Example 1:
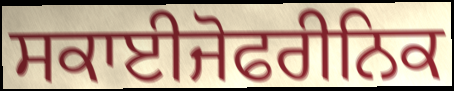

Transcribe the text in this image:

ਸਕਾਈਜੋਫਰੀਨਿਕ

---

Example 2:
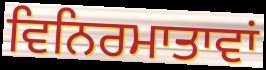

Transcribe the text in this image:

ਵਿਨਿਰਮਾਤਾਵਾਂ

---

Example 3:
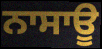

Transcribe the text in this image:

ਨਾਸਾਊ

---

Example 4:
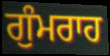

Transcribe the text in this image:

ਗੁੰਮਰਾਹ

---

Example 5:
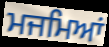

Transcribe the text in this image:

ਮਜਮਿਆਂ